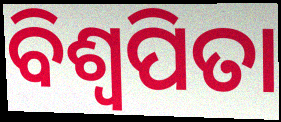
ବିଶ୍ଵପିତା